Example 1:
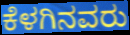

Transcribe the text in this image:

ಕೆಳಗಿನವರು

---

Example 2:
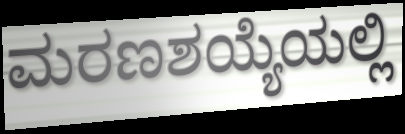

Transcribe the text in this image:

ಮರಣಶಯ್ಯೆಯಲ್ಲಿ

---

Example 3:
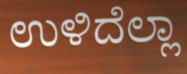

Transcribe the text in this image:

ಉಳಿದೆಲ್ಲಾ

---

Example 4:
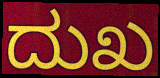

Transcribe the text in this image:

ದುಖ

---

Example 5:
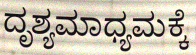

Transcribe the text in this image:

ದೃಶ್ಯಮಾಧ್ಯಮಕ್ಕೆ